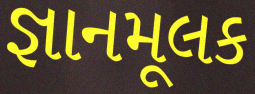
જ્ઞાનમૂલક